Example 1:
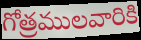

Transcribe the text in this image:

గోత్రములవారికి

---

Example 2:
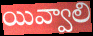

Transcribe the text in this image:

యివ్వాలి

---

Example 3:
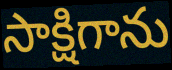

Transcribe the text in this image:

సాక్షిగాను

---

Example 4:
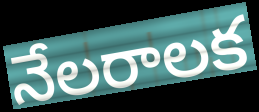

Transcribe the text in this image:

నేలరాలక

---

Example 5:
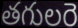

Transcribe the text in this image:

తగులరె